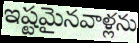
ఇష్టమైనవాళ్లను